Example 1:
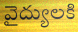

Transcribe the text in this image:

వైద్యులకి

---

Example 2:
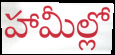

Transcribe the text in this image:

హామీల్లో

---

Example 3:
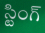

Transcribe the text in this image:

స్టింగ్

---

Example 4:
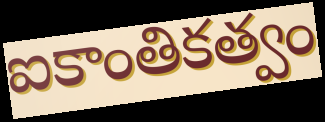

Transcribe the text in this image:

ఐకాంతికత్వం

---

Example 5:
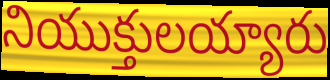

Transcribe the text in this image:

నియుక్తులయ్యారు